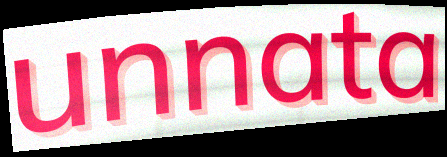
unnata